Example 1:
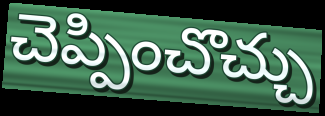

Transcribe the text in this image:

చెప్పించొచ్చు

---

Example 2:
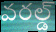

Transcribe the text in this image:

వరల్డ్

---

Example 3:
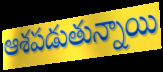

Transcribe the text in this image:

ఆశపడుతున్నాయి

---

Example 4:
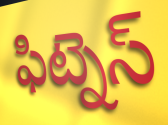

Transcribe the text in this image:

ఫిట్నెస్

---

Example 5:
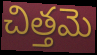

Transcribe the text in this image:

చిత్తమె